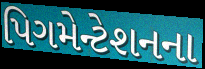
પિગમેન્ટેશનના